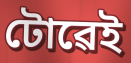
টোৱেই